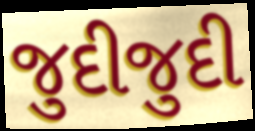
જુદીજુદી